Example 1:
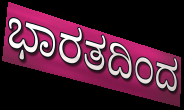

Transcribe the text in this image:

ಭಾರತದಿಂದ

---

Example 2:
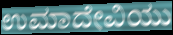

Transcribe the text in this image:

ಉಮಾದೇವಿಯು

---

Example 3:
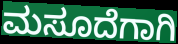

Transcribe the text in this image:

ಮಸೂದೆಗಾಗಿ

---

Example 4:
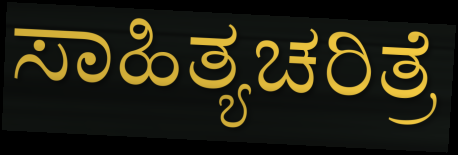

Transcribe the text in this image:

ಸಾಹಿತ್ಯಚರಿತ್ರೆ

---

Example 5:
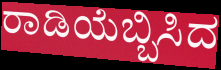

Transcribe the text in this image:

ರಾಡಿಯೆಬ್ಬಿಸಿದ